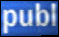
publ